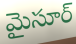
మైసూర్